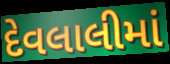
દેવલાલીમાં